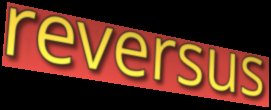
reversus